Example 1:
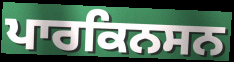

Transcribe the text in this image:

ਪਾਰਕਿਨਸਨ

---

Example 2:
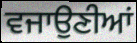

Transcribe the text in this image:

ਵਜਾਉਣੀਆਂ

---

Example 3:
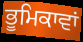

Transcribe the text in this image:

ਭੂਮਿਕਾਵਾਂ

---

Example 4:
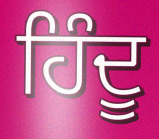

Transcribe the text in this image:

ਹਿੰਦੂ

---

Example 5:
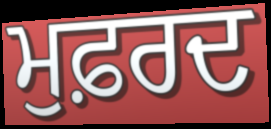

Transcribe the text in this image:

ਮੁਫ਼ਰਦ